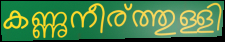
കണ്ണുനീര്ത്തുള്ളി